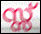
സ്സ്